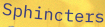
Sphincters